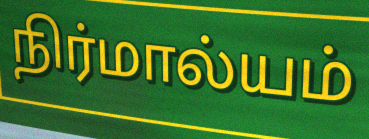
நிர்மால்யம்